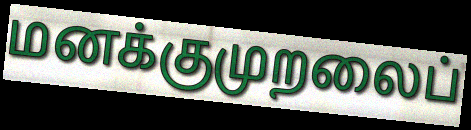
மனக்குமுறலைப்